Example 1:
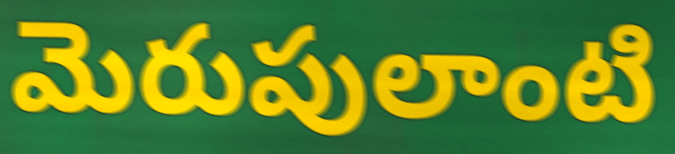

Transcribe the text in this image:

మెరుపులాంటి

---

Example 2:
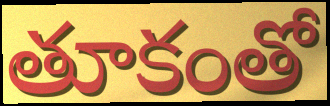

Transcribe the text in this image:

తూకంతో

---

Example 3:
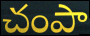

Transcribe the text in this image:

చంపా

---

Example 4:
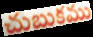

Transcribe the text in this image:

చుబుకము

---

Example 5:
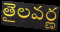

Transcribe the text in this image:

తైలవర్ణ